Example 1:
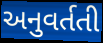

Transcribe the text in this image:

અનુવર્તતી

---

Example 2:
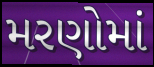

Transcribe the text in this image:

મરણોમાં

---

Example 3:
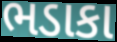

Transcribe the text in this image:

ભડાકા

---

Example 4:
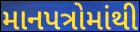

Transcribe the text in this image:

માનપત્રોમાંથી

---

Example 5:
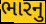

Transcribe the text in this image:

ભારનુ